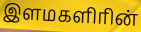
இளமகளிரின்